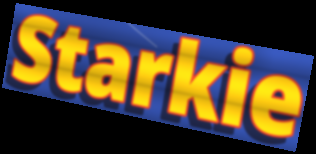
Starkie